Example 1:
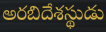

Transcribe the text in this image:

అరబిదేశస్థుడు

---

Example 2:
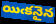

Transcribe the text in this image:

యిఁకనైన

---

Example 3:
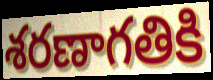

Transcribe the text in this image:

శరణాగతికి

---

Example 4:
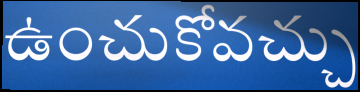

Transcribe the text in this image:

ఉంచుకోవచ్చు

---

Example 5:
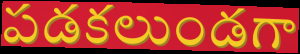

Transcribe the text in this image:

పడకలుండగా